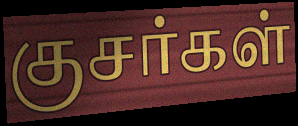
குசர்கள்